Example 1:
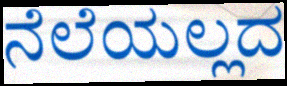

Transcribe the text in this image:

ನೆಲೆಯಲ್ಲದ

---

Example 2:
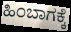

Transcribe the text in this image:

ಹಿಂಬಾಗಕ್ಕೆ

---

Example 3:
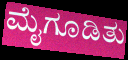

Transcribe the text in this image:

ಮೈಗೂಡಿತು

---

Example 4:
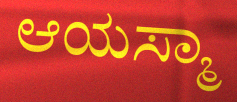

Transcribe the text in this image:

ಆಯಸ್ಮಾ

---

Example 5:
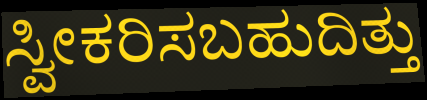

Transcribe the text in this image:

ಸ್ವೀಕರಿಸಬಹುದಿತ್ತು